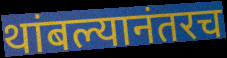
थांबल्यानंतरच